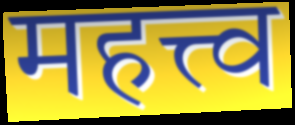
महत्त्व